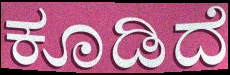
ಕೂಡಿದೆ